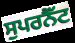
ਸੁਪਰਨੈੱਟ